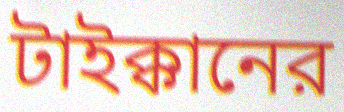
টাইক্কানের